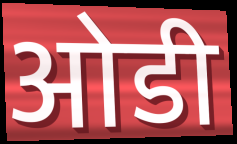
ओडी